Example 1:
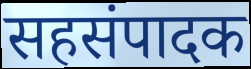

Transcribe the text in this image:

सहसंपादक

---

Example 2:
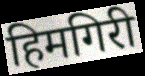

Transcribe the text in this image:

हिमगिरी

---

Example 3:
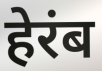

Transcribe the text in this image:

हेरंब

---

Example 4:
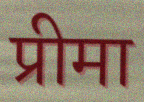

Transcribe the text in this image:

प्रीमा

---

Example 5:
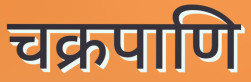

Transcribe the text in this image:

चक्रपाणि